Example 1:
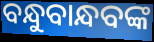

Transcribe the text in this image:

ବନ୍ଧୁବାନ୍ଧବଙ୍କ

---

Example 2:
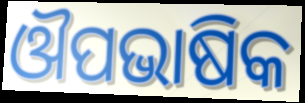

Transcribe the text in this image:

ଔପଭାଷିକ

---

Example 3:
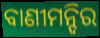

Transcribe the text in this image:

ବାଣୀମନ୍ଦିର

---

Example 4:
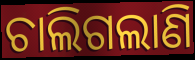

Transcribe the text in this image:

ଚାଲିଗଲାଣି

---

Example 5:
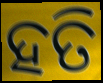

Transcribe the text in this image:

ହତି